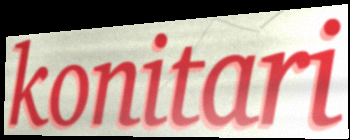
konitari